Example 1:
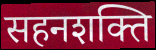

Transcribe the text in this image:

सहनशक्ति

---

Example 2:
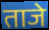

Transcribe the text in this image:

ताजे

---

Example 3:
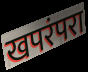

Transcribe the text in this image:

खपरंपरा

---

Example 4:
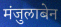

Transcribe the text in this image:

मंजुलाबेन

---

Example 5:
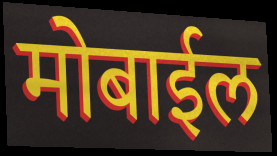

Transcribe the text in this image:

मोबाईल